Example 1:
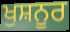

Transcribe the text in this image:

ਖੁਸ਼ਨੂਰ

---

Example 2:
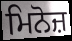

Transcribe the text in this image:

ਮਿਨੋਜ਼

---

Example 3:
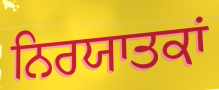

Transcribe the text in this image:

ਨਿਰਯਾਤਕਾਂ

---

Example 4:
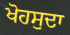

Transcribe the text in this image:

ਖੋਹਸੁਦਾ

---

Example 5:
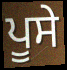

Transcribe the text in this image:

ਪੂਸੇ